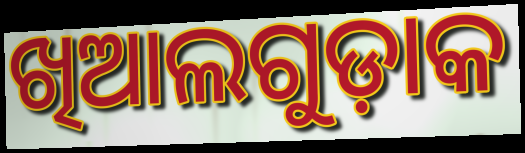
ଖିଆଲଗୁଡ଼ାକ